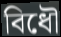
বিধৌ